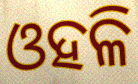
ଓହଳି